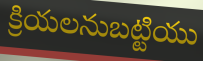
క్రియలనుబట్టియు